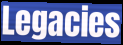
Legacies